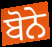
ਬੋਨੇ